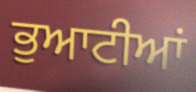
ਭੁਆਟੀਆਂ